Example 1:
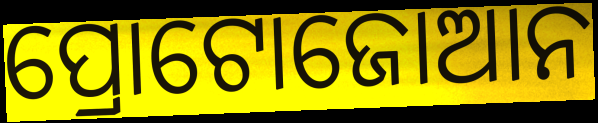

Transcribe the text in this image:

ପ୍ରୋଟୋଜୋଆନ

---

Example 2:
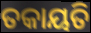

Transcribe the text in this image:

ତକାୟତି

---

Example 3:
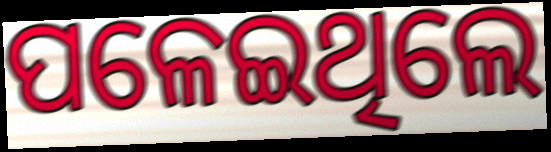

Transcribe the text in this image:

ପଳେଇଥିଲେ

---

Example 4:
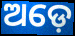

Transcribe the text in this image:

ଅଡ଼େ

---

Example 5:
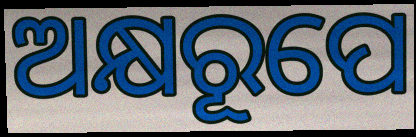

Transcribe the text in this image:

ଅକ୍ଷରୂପେ